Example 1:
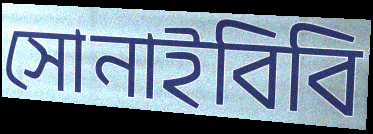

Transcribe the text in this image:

সোনাইবিবি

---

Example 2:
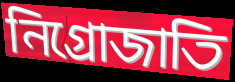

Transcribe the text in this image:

নিগ্রোজাতি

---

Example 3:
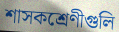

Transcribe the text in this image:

শাসকশ্রেণীগুলি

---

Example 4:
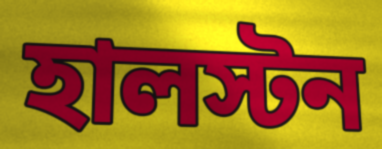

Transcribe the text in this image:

হালস্টন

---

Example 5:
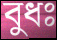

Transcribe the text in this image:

বুধঃ